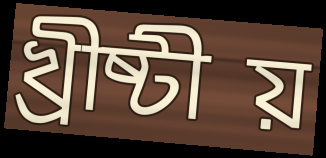
খ্ৰীষ্টীয়